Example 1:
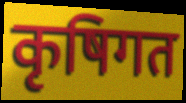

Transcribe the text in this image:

कृषिगत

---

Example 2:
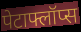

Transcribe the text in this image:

पेटाफ्लॉप्स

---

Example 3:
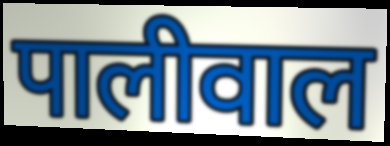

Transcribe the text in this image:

पालीवाल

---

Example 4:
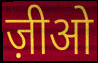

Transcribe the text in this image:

ज़ीओ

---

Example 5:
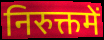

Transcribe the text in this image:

निरुक्तमें